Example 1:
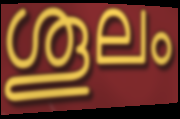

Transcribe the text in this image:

ശൂലം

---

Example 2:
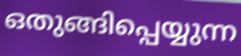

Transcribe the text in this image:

ഒതുങ്ങിപ്പെയ്യുന്ന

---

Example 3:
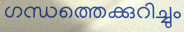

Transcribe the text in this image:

ഗന്ധത്തെക്കുറിച്ചും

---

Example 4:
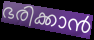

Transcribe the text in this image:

ഭരിക്കാൻ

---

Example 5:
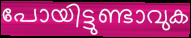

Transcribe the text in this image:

പോയിട്ടുണ്ടാവുക